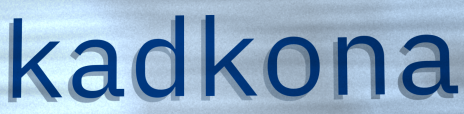
kadkona